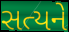
સત્યને